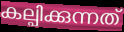
കല്പിക്കുന്നത്